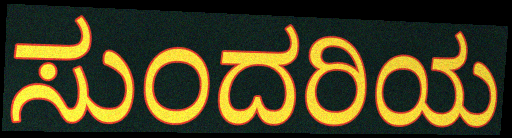
ಸುಂದರಿಯ